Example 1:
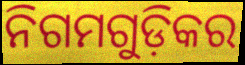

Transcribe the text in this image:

ନିଗମଗୁଡ଼ିକର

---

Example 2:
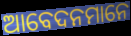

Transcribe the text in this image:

ଆବେଦନମାନେ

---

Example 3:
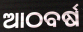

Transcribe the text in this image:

ଆଠବର୍ଷ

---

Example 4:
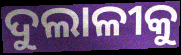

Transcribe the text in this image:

ଦୁଲାଳୀକୁ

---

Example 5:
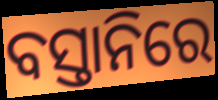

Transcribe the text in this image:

ବସ୍ତାନିରେ